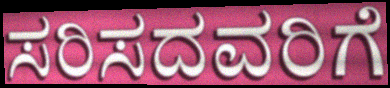
ಸರಿಸದವರಿಗೆ